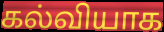
கல்வியாக